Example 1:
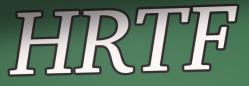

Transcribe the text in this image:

HRTF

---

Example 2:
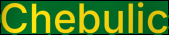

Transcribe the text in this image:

Chebulic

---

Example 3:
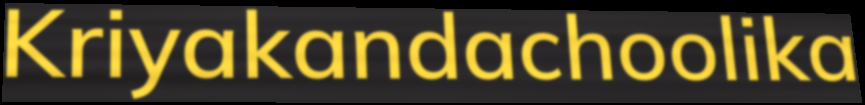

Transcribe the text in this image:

Kriyakandachoolika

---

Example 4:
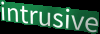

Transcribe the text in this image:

intrusive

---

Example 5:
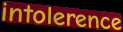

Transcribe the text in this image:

intolerence